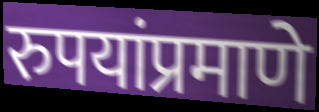
रुपयांप्रमाणे